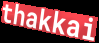
thakkai